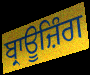
ਬ੍ਰਾਊਜ਼ਿੰਗ